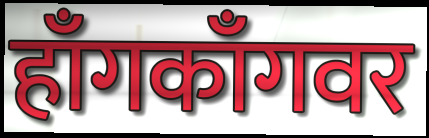
हाँगकाँगवर